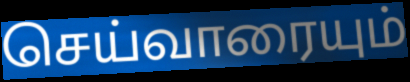
செய்வாரையும்